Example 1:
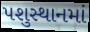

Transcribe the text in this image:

પશુસ્થાનમાં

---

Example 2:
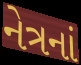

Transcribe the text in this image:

નેત્રનાં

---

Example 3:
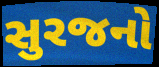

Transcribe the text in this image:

સુરજનો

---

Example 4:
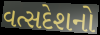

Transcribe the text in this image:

વત્સદેશનો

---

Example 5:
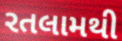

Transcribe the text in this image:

રતલામથી